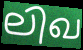
ലിഖ